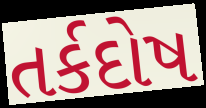
તર્કદોષ